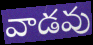
వాడవు